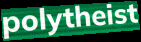
polytheist